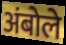
अंबोले